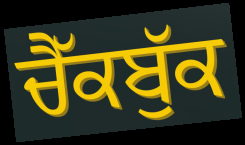
ਚੈੱਕਬੁੱਕ